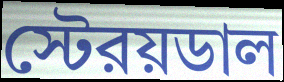
স্টেরয়ডাল